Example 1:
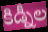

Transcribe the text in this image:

కిడ్నీల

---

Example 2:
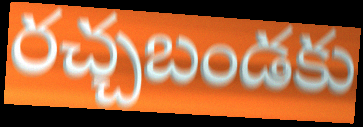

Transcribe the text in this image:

రచ్చబండకు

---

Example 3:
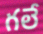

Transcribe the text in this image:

గలే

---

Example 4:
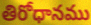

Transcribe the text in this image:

తిరోధానము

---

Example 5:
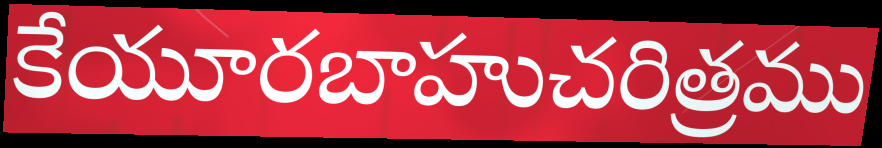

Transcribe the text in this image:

కేయూరబాహుచరిత్రము